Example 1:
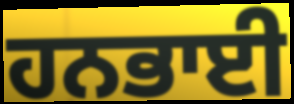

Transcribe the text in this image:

ਹਨਭਾਈ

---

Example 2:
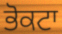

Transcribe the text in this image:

ਭੋਕਟਾ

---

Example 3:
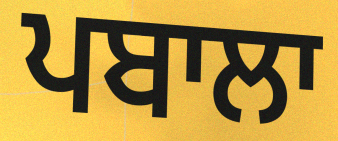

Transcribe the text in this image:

ਪਬਾਲਾ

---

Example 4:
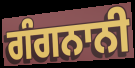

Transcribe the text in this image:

ਗੰਗਨਾਨੀ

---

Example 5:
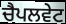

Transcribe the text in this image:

ਚੈਪਲਵੇਟ